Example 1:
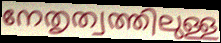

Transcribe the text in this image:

നേതൃത്വത്തിലുള്ള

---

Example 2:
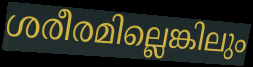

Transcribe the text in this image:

ശരീരമില്ലെങ്കിലും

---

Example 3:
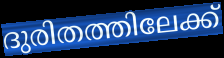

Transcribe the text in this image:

ദുരിതത്തിലേക്ക്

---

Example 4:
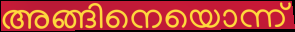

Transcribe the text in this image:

അങ്ങിനെയൊന്ന്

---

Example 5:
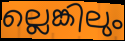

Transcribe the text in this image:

ല്ലെങ്കിലും